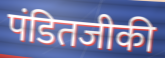
पंडितजीकी